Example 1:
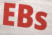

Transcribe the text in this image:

EBs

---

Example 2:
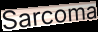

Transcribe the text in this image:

Sarcoma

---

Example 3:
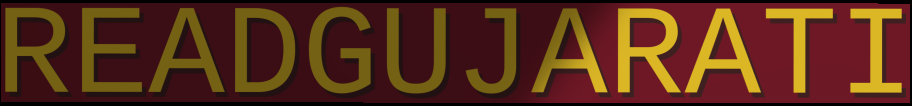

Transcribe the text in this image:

READGUJARATI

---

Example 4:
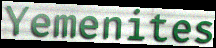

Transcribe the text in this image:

Yemenites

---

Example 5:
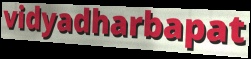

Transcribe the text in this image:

vidyadharbapat